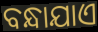
ବନ୍ଧାଯାଏ